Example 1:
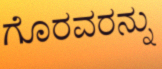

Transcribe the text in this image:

ಗೊರವರನ್ನು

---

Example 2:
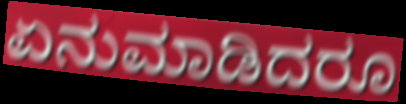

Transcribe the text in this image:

ಏನುಮಾಡಿದರೂ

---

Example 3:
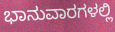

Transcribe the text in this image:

ಭಾನುವಾರಗಳಲ್ಲಿ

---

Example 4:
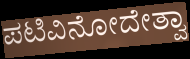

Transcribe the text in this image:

ಪಟಿವಿನೋದೇತ್ವಾ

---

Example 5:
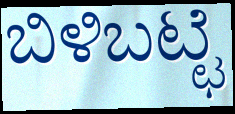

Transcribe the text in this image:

ಬಿಳಿಬಟ್ಟೆ